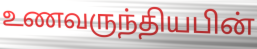
உணவருந்தியபின்